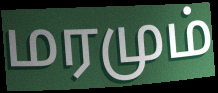
மரமும்